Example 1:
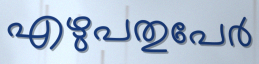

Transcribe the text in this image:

എഴുപതുപേർ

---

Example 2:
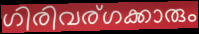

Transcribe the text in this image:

ഗിരിവര്ഗക്കാരും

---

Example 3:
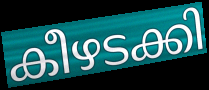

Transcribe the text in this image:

കീഴടക്കി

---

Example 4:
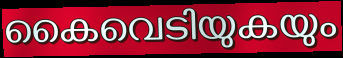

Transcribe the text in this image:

കൈവെടിയുകയും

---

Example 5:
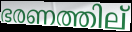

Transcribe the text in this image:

ഭരണത്തില്